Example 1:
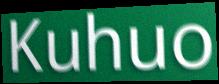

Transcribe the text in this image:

Kuhuo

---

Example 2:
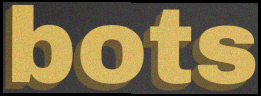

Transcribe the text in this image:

bots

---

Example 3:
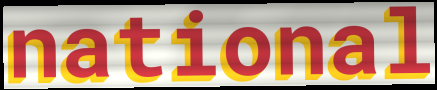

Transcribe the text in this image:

national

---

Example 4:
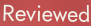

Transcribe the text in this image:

Reviewed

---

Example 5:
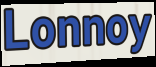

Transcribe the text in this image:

Lonnoy